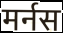
मर्नस